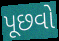
પૂછવો